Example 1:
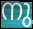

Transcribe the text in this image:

നു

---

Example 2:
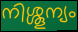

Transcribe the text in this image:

നിശ്ശൂന്യം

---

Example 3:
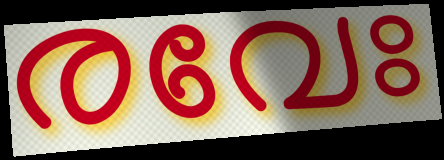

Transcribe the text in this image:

രവേഃ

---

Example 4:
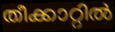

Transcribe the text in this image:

തീക്കാറ്റിൽ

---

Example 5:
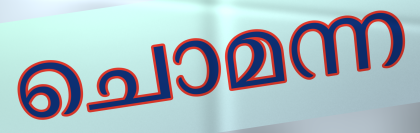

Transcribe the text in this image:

ചൊമന്ന